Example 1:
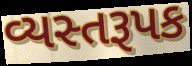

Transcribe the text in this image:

વ્યસ્તરૂપક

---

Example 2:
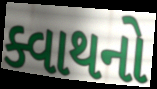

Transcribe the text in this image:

ક્વાથનો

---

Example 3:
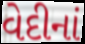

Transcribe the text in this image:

વેદીનાં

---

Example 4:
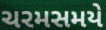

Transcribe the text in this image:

ચરમસમયે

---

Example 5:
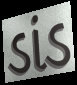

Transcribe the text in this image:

ડાંડ